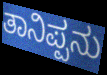
ತಾನಿಪ್ಪನು